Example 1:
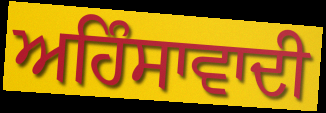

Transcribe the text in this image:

ਅਹਿੰਸਾਵਾਦੀ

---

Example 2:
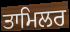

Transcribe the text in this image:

ਤਾਮਿਲਰ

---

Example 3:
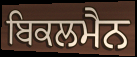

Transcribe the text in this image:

ਬਿਕਲਮੈਨ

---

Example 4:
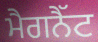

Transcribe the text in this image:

ਮੈਗਨੈੱਟ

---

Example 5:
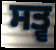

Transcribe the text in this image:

ਸਤ੍ਵ